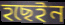
হছেইন